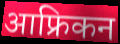
आफ्रिकन